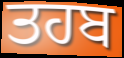
ਤਹਬ